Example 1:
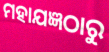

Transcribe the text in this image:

ମହାଯଜ୍ଞଠାରୁ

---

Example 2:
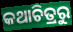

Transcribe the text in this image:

କଥାଚିତ୍ରରୁ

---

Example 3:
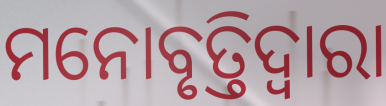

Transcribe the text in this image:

ମନୋବୃତ୍ତିଦ୍ଵାରା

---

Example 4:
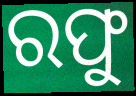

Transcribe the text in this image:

ରଫୁ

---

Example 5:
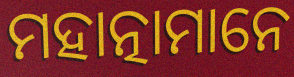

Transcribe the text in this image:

ମହାତ୍ନାମାନେ